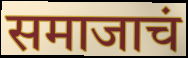
समाजाचं